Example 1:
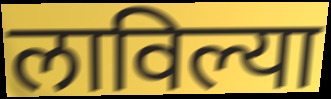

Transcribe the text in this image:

लाविल्या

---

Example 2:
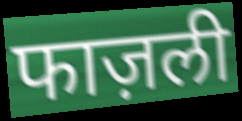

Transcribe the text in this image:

फाज़ली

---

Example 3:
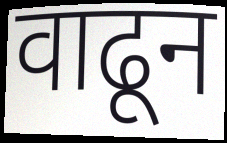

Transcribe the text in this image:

वाढून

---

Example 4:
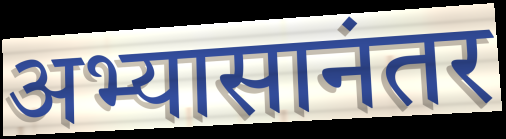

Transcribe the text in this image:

अभ्यासानंतर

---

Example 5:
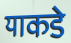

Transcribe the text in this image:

याकडे